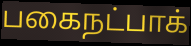
பகைநட்பாக்